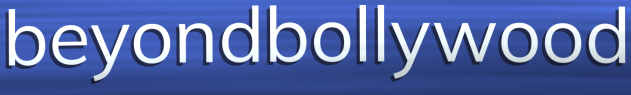
beyondbollywood